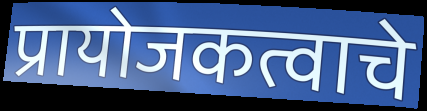
प्रायोजकत्वाचे